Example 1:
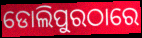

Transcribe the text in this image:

ଡୋଲିପୁରଠାରେ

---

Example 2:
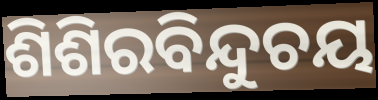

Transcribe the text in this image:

ଶିଶିରବିନ୍ଦୁଚୟ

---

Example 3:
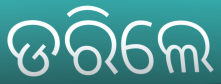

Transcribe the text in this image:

ଡରିଲେ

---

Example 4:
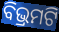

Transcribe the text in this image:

ବିଭ୍ରମଟି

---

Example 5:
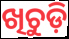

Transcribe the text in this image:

ଖିଚୁଡ଼ି